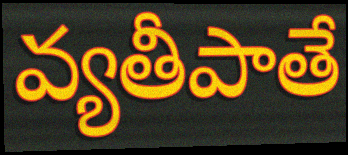
వ్యతీపాతే